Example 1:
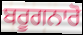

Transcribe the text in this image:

ਬਰੂਗਨਾਰੋ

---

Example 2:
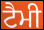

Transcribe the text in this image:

ਟੈਮੀ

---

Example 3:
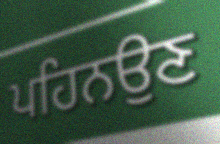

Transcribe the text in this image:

ਪਹਿਨਉਣ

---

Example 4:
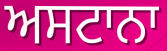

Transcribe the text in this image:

ਅਸਟਾਨਾ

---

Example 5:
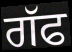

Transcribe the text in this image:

ਗੱਫ